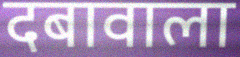
दबावाला